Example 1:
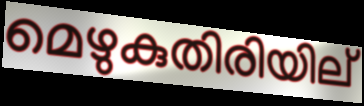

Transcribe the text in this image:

മെഴുകുതിരിയില്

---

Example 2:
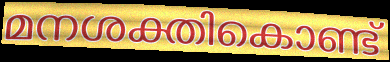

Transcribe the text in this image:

മനശക്തികൊണ്ട്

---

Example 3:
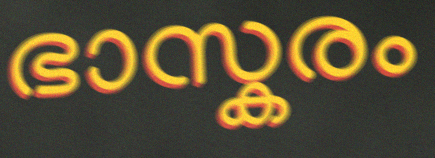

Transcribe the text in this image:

ഭാസ്കരം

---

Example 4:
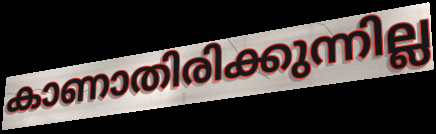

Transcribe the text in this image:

കാണാതിരിക്കുന്നില്ല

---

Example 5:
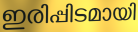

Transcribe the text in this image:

ഇരിപ്പിടമായി